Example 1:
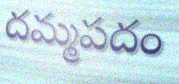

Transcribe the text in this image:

దమ్మపదం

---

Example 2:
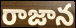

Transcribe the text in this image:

రాజాన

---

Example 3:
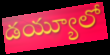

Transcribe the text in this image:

డయ్యూలో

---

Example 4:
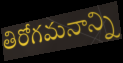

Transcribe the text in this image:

తిరోగమనాన్ని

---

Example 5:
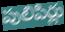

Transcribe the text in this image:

పులిపిర్లు